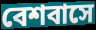
বেশবাসে